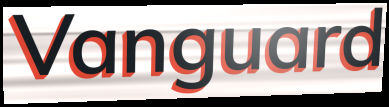
Vanguard